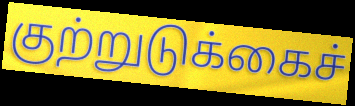
குற்றுடுக்கைச்